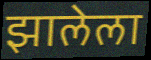
झालेला